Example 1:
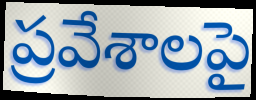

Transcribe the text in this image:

ప్రవేశాలపై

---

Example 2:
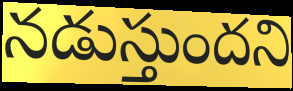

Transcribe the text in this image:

నడుస్తుందని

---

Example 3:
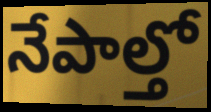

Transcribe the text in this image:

నేపాల్తో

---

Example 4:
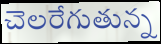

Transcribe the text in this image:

చెలరేగుతున్న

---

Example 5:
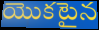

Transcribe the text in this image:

యొకటైన